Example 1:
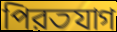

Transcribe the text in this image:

পিরতযাগ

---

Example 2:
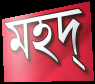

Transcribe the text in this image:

মহদ্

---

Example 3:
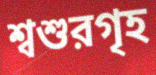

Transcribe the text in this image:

শ্বশুরগৃহ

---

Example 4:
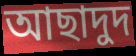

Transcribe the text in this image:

আছাদুদ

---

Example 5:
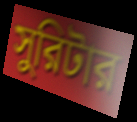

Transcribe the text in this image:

সুরিটার